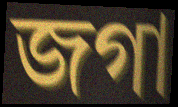
জগা